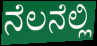
ನೆಲನೆಲ್ಲಿ